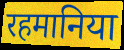
रहमानिया